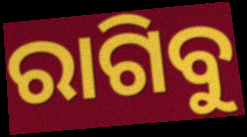
ରାଗିବୁ